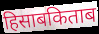
हिसाबकिताब